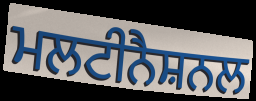
ਮਲਟੀਨੈਸ਼ਨਲ